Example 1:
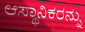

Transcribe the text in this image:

ಆಸ್ಥಾನಿಕರನ್ನು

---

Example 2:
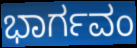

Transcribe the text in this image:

ಭಾರ್ಗವಂ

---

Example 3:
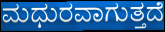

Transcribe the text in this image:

ಮಧುರವಾಗುತ್ತದೆ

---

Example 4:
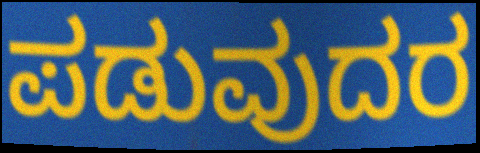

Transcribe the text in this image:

ಪಡುವುದರ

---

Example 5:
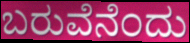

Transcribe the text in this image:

ಬರುವೆನೆಂದು